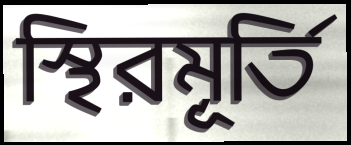
স্থিরমূর্তি